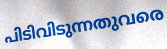
പിടിവിടുന്നതുവരെ